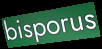
bisporus